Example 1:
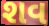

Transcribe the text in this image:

શવ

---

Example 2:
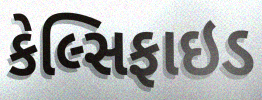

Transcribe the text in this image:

કેલ્સિફાઇડ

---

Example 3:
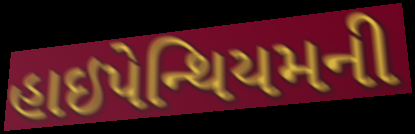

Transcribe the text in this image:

હાઇપેન્થિયમની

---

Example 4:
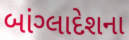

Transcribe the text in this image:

બાંગ્લાદેશના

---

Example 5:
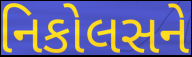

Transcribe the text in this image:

નિકોલસને